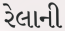
રેલાની